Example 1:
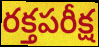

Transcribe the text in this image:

రక్తపరీక్ష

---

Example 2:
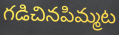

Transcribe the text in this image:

గడిచినపిమ్మట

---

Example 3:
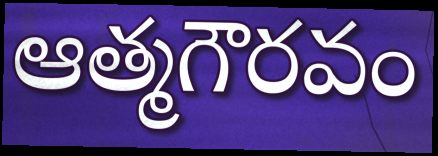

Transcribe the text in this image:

ఆత్మగౌరవం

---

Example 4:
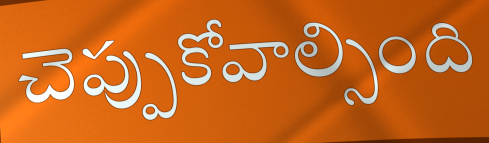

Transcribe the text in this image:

చెప్పుకోవాల్సింది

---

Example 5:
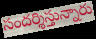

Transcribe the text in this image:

సందర్శిస్తున్నారు